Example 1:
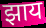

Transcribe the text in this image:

झाय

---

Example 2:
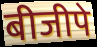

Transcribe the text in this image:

बीजीपे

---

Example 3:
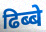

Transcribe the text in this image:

ढिब्बे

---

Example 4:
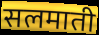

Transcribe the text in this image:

सलमाती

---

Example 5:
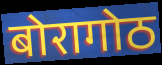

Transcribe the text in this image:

बोरागोठ